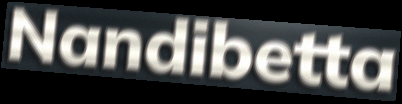
Nandibetta